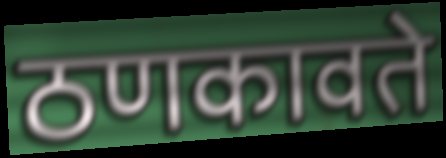
ठणकावते